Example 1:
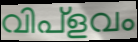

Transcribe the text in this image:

വിപ്ളവം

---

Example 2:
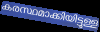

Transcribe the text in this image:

കരസ്ഥമാക്കിയിട്ടുള്ള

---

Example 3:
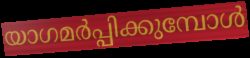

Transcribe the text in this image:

യാഗമർപ്പിക്കുമ്പോൾ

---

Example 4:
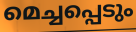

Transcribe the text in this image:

മെച്ചപ്പെടും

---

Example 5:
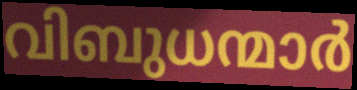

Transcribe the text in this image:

വിബുധന്മാർ